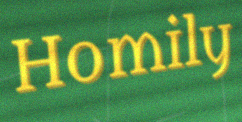
Homily